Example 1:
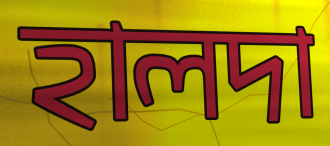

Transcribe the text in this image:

হালদা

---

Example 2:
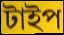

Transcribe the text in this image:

টাইপ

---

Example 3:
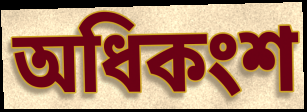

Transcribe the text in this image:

অধিকংশ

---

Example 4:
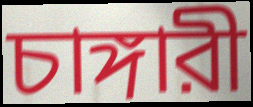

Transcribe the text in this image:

চাঙ্গারী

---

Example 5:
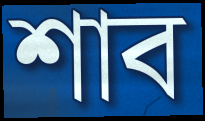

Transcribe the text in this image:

শাব